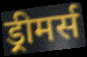
ड्रीमर्स